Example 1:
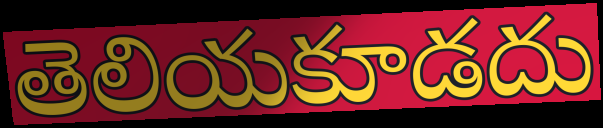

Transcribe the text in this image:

తెలియకూడదు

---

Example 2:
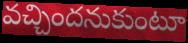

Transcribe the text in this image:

వచ్చిందనుకుంటూ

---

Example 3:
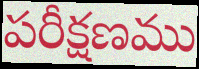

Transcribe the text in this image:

పరీక్షణము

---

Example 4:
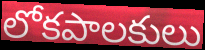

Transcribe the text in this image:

లోకపాలకులు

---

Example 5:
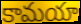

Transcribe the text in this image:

కామయా